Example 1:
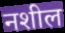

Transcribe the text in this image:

नशील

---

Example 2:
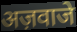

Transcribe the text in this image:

अज़वाजे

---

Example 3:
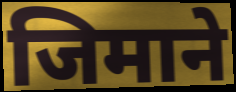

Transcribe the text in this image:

जिमाने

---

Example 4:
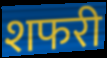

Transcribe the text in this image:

शफरी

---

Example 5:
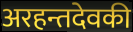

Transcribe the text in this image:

अरहन्तदेवकी